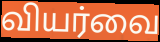
வியர்வை